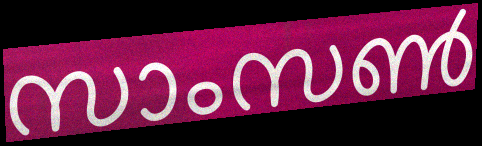
സാംസൺ